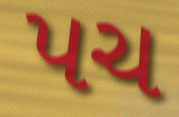
પચ